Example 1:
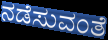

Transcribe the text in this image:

ನಡೆಸುವಂತೆ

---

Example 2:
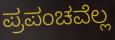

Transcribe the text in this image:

ಪ್ರಪಂಚವೆಲ್ಲ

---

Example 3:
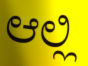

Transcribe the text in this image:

ಆಲ್ಲಿ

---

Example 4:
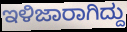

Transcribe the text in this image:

ಇಳಿಜಾರಾಗಿದ್ದು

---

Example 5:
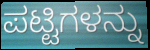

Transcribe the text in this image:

ಪಟ್ಟಿಗಳನ್ನು